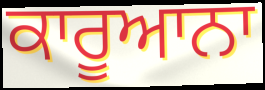
ਕਾਰੂਆਨਾ